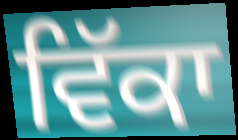
ਵਿੱਕਾ